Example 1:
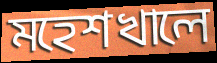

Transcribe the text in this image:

মহেশখালে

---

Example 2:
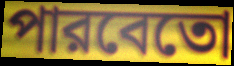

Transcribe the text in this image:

পারবেতো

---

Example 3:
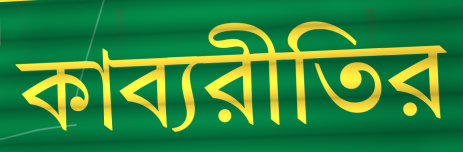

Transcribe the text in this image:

কাব্যরীতির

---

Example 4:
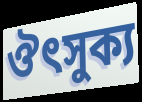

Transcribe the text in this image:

ঔৎসুক্য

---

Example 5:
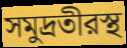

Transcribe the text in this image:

সমুদ্রতীরস্থ